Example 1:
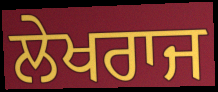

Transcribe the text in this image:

ਲੇਖਰਾਜ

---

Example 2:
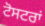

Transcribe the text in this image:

ਟੋਸਟਰਾਂ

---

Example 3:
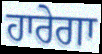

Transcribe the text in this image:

ਹਾਰੇਗਾ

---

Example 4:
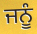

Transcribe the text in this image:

ਜਨੂੰ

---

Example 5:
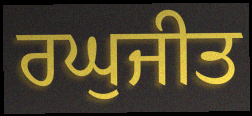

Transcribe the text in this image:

ਰਘੁਜੀਤ